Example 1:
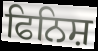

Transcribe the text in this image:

ਫਿਨਿਸ਼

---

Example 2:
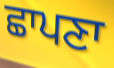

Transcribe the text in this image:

ਛਾਪਣਾ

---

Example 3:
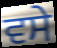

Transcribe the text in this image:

ਵਸੇ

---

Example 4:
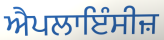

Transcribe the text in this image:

ਐਪਲਾਇੰਸੀਜ਼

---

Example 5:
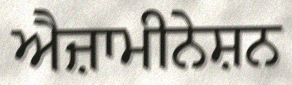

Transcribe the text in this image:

ਐਜ਼ਾਮੀਨੇਸ਼ਨ